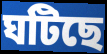
ঘটিছে